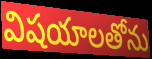
విషయాలతోను